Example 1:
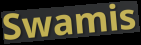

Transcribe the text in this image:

Swamis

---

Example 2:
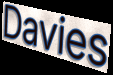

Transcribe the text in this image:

Davies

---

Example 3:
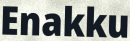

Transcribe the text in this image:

Enakku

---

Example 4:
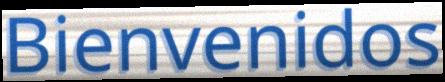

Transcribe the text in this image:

Bienvenidos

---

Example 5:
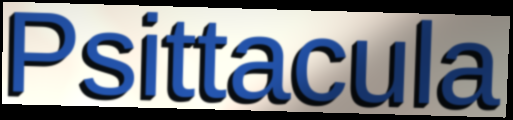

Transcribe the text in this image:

Psittacula